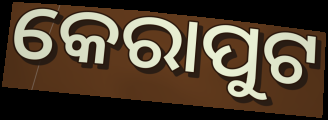
କେରାପୁଟ